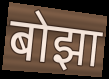
बोझा